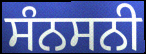
ਸੰਨਸਨੀ